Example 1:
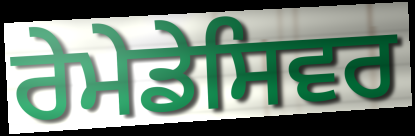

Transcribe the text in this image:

ਰੇਮੇਡੇਸਿਵਰ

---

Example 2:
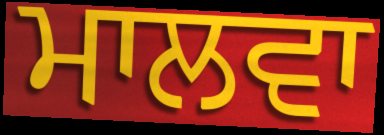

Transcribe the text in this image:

ਮਾਲਵਾ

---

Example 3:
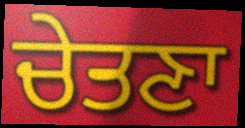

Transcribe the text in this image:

ਚੇਤਣਾ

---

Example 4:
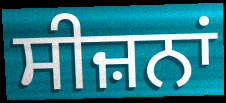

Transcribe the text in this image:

ਸੀਜ਼ਨਾਂ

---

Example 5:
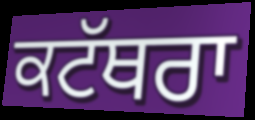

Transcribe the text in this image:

ਕਟੱਥਰਾ